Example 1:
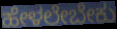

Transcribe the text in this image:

ಹೇಳಲೇಬೇಕು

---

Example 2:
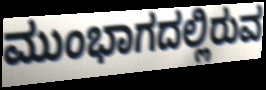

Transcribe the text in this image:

ಮುಂಭಾಗದಲ್ಲಿರುವ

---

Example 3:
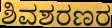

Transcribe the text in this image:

ಶಿವಶರಣರ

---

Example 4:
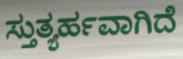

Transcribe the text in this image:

ಸ್ತುತ್ಯರ್ಹವಾಗಿದೆ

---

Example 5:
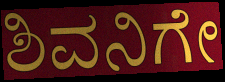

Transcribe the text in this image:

ಶಿವನಿಗೇ